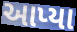
આપ્યા